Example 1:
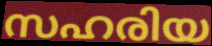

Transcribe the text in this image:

സഹരിയ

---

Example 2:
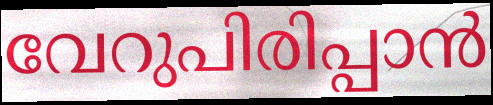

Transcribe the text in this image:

വേറുപിരിപ്പാൻ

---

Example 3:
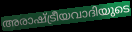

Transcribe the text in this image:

അരാഷ്ട്രീയവാദിയുടെ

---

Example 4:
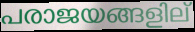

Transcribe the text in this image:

പരാജയങ്ങളില്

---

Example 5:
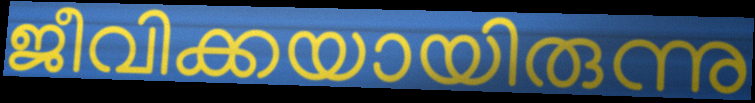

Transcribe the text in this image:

ജീവിക്കയായിരുന്നു